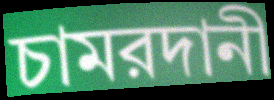
চামরদানী